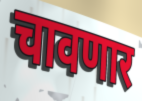
चावणार